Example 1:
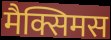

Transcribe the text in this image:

मैक्सिमस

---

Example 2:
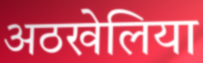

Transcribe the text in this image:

अठखेलिया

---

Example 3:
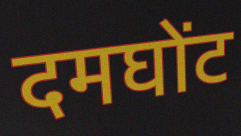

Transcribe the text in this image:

दमघोंट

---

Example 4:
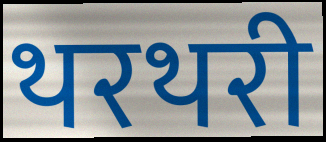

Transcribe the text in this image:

थरथरी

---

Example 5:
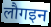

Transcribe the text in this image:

लौगइन